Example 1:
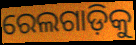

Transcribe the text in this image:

ରେଲଗାଡ଼ିକୁ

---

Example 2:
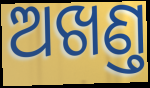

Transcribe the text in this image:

ଅଖଣ୍ତ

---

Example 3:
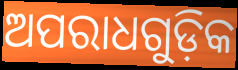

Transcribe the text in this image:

ଅପରାଧଗୁଡ଼ିକ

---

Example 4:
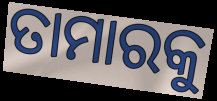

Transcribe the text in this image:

ତାମାରକୁ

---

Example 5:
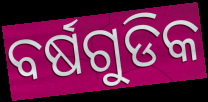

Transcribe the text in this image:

ବର୍ଷଗୁଡିକ